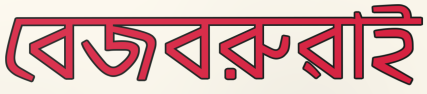
বেজবৰুৱাই